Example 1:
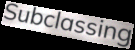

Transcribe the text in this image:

Subclassing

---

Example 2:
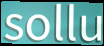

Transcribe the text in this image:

sollu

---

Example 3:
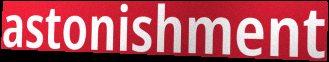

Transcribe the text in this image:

astonishment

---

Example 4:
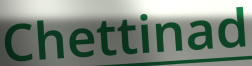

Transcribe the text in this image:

Chettinad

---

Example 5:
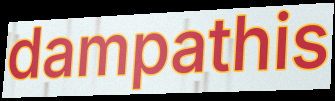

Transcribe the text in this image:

dampathis